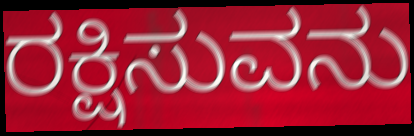
ರಕ್ಷಿಸುವನು